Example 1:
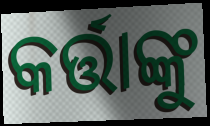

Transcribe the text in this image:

କର୍ତ୍ତାଙ୍କୁ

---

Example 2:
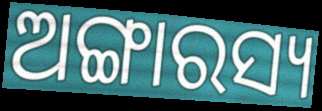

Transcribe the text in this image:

ଅଙ୍ଗାରସ୍ୟ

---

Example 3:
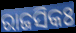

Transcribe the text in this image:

ରାଜସିକଃ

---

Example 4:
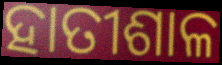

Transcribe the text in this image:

ହାତୀଶାଳ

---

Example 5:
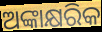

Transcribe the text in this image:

ଅଙ୍କାକ୍ଷରିକ